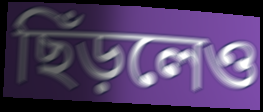
ছিঁড়লেও